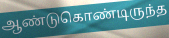
ஆண்டுகொண்டிருந்த